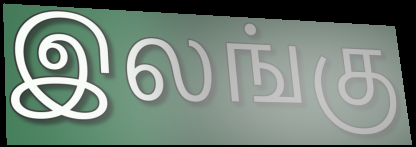
இலங்கு